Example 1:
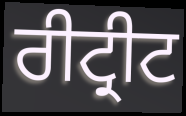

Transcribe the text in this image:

ਰੀਟ੍ਰੀਟ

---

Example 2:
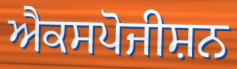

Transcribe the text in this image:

ਐਕਸਪੋਜੀਸ਼ਨ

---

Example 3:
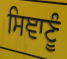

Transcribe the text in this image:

ਸਿਞਾਣੂੰ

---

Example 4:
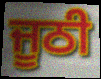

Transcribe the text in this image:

ਜੂਠੀ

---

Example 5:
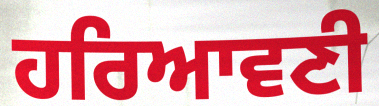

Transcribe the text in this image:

ਹਰਿਆਵਣੀ